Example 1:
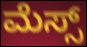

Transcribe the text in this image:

ಮೆಸ್ಸ್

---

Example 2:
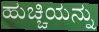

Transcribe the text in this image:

ಹುಚ್ಚಿಯನ್ನು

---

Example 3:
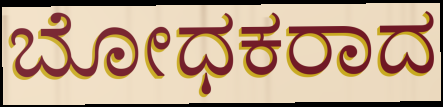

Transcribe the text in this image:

ಬೋಧಕರಾದ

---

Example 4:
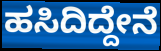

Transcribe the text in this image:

ಹಸಿದಿದ್ದೇನೆ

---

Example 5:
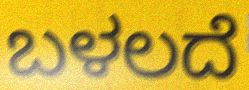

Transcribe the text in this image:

ಬಳಲದೆ